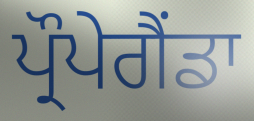
ਪ੍ਰੌਪੇਗੈਂਡਾ